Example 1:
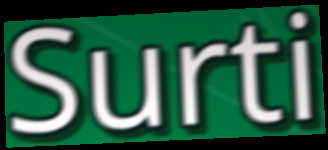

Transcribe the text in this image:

Surti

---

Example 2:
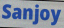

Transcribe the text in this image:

Sanjoy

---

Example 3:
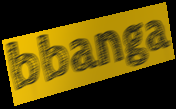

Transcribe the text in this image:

bbanga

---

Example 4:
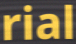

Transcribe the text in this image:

rial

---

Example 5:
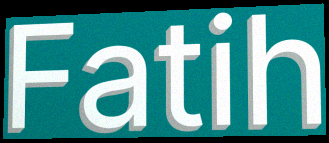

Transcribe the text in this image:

Fatih